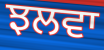
ਝਲਵਾ